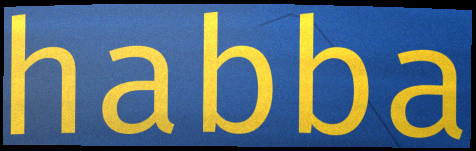
habba